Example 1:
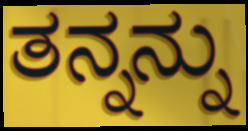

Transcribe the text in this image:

ತನ್ನನ್ನು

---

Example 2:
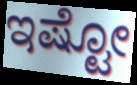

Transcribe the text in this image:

ಇಷ್ಟೋ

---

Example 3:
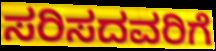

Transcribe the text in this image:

ಸರಿಸದವರಿಗೆ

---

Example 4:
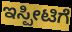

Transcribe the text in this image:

ಇಸ್ಪೀಟಿಗೆ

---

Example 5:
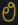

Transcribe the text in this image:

ಲಿ